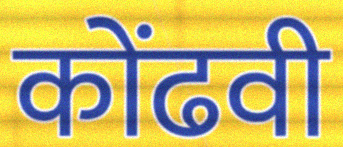
कोंढवी